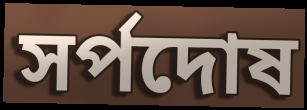
সর্পদোষ